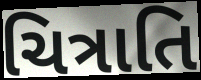
ચિત્રાતિ